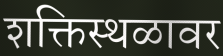
शक्तिस्थळावर